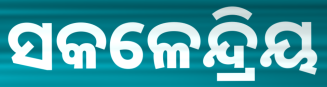
ସକଳେନ୍ଦ୍ରିୟ